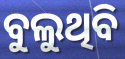
ବୁଲୁଥିବି